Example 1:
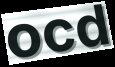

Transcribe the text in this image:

ocd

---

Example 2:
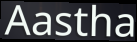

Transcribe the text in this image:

Aastha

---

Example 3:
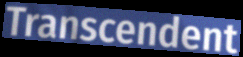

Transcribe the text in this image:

Transcendent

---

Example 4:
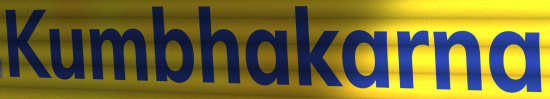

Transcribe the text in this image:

Kumbhakarna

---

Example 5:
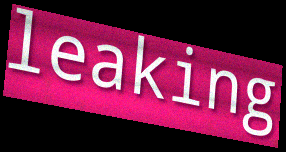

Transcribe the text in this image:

leaking